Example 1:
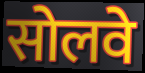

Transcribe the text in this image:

सोलवे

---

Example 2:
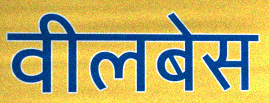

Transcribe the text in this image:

वीलबेस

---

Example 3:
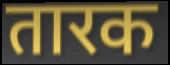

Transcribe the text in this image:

तारक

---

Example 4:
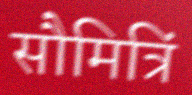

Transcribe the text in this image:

सौमित्रिं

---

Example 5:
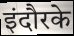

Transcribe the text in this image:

इंदौरके